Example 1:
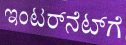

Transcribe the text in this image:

ಇಂಟರ್‌ನೆಟ್‌ಗೆ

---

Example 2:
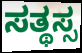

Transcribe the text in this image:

ಸತ್ಥಸ್ಸ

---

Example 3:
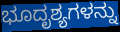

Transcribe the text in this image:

ಭೂದೃಶ್ಯಗಳನ್ನು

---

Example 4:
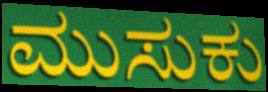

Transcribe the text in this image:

ಮುಸುಕು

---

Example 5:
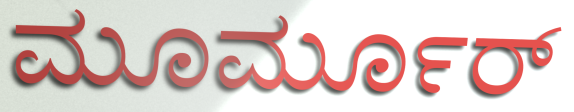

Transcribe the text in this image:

ಮೂರ್ಮೂರ್